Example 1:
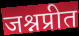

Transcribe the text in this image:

जश्नप्रीत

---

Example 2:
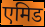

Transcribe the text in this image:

एमिड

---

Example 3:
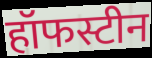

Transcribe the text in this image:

हॉफस्टीन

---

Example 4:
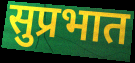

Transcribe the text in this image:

सुप्रभात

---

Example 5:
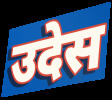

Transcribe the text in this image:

उदेस